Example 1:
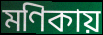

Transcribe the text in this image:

মণিকায়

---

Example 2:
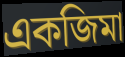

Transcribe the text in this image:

একজিমা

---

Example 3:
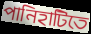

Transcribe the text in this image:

পানিহাটিতে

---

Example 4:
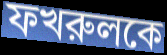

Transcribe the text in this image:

ফখরুলকে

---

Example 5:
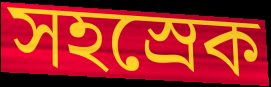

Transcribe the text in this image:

সহস্রেক